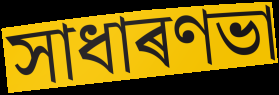
সাধাৰণভা